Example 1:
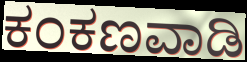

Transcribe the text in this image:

ಕಂಕಣವಾಡಿ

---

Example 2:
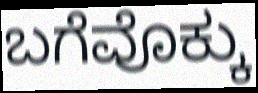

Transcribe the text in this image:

ಬಗೆವೊಕ್ಕು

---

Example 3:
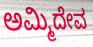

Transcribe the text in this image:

ಅಮ್ಮಿದೇವ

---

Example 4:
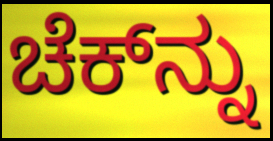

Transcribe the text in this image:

ಚೆಕ್‌ನ್ನು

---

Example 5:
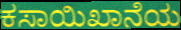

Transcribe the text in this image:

ಕಸಾಯಿಖಾನೆಯ